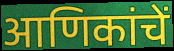
आणिकांचें